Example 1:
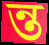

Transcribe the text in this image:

ন্ত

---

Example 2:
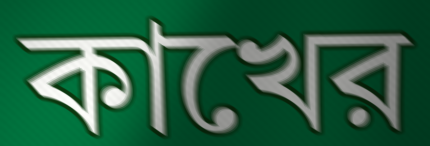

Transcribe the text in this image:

কাখের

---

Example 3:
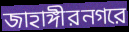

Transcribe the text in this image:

জাহাঙ্গীরনগরে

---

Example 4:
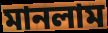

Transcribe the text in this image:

মানলাম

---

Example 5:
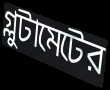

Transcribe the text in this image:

গ্লুটামেটের